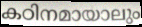
കഠിനമായാലും